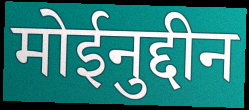
मोईनुद्दीन